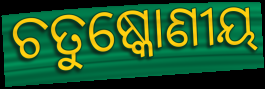
ଚତୁଷ୍କୋଣୀୟ